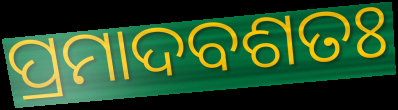
ପ୍ରମାଦବଶତଃ